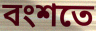
বংশতে